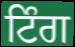
ਟਿੰਗ